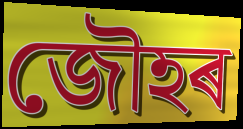
জৌহৰ